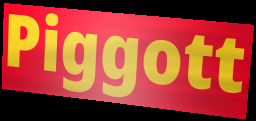
Piggott